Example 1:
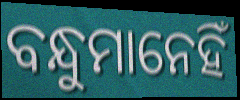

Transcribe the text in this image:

ବନ୍ଧୁମାନେହିଁ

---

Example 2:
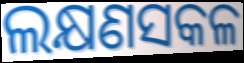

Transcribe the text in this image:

ଲକ୍ଷଣସକଳ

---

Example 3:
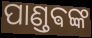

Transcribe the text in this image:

ପାଣ୍ଡଵଙ୍କ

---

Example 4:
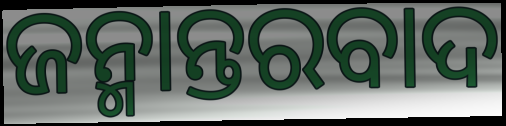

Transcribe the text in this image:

ଜନ୍ମାନ୍ତରବାଦ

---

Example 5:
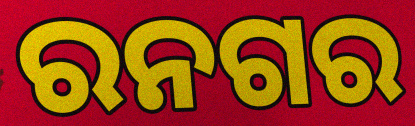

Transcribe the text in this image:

ରନଗର